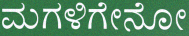
ಮಗಳಿಗೇನೋ